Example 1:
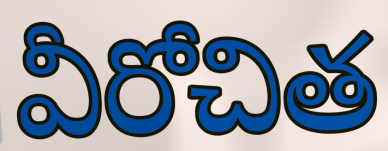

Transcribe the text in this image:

వీరోచిత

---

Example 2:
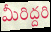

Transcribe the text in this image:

మీరిద్దరి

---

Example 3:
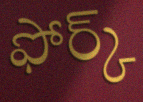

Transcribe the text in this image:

ఫోర్క్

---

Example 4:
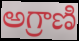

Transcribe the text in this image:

అగ్రాణి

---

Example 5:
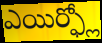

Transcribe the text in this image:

ఎయిర్ఫ్లో